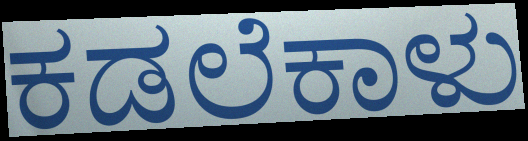
ಕಡಲೆಕಾಳು